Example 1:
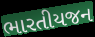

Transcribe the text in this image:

ભારતીયજન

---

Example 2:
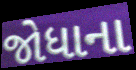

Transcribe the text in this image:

જોધાના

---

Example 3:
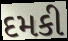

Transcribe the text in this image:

દમકી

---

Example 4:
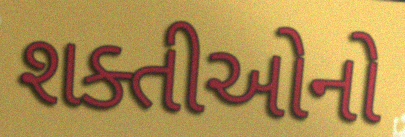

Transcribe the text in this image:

શક્તીઓનો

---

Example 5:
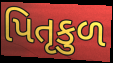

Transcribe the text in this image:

પિતૃકુળ